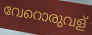
വേറൊരുവള്